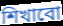
শিখাবো